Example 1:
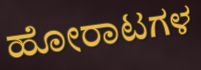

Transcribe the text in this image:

ಹೋರಾಟಗಳ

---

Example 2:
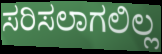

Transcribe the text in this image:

ಸರಿಸಲಾಗಲಿಲ್ಲ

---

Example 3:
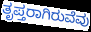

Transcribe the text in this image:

ತೃಪ್ತರಾಗಿರುವೆವು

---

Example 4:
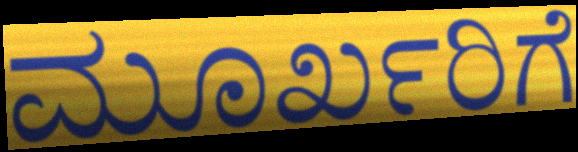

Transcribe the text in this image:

ಮೂರ್ಖರಿಗೆ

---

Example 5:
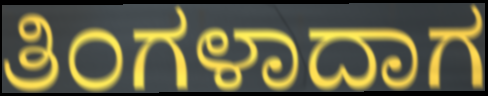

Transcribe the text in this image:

ತಿಂಗಳಾದಾಗ